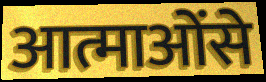
आत्माओंसे